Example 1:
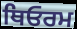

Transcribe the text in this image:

ਥਿਓਰਮ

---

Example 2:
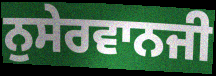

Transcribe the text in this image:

ਨੁਸੇਰਵਾਨਜੀ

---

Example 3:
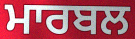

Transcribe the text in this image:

ਮਾਰਬਲ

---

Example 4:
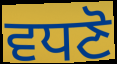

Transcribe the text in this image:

ਵਧਣੋ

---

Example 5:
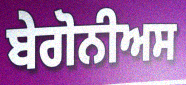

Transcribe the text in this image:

ਬੇਗੋਨੀਅਸ